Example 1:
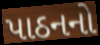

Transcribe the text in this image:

પાઠનનો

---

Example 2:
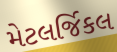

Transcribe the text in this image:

મેટલર્જિકલ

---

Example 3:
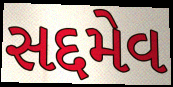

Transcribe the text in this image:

સદ્દમેવ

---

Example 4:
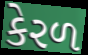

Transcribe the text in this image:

કેરળ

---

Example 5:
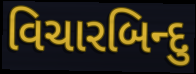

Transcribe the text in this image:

વિચારબિન્દુ